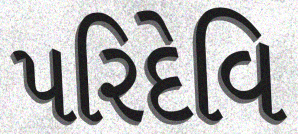
પરિદેવિ